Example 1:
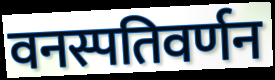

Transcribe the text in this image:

वनस्पतिवर्णन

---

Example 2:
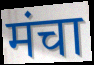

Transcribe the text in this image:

मंचा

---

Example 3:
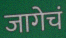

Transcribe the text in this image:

जागेचं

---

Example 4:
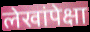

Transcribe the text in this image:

लेखांपेक्षा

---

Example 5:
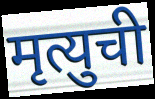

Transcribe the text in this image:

मृत्युची